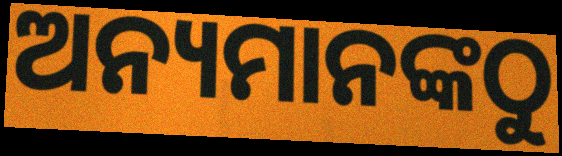
ଅନ୍ୟମାନଙ୍କଠୁ